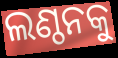
ଲଣ୍ଠନକୁ